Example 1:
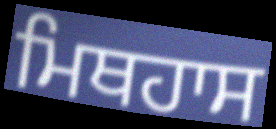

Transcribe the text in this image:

ਮਿਥਹਾਸ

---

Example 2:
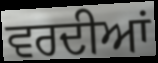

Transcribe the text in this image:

ਵਰਦੀਆਂ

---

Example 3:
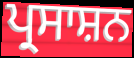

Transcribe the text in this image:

ਪ੍ਰਸਾਸ਼ਨ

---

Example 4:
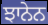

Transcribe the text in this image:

ਝਾਨੇਨ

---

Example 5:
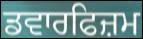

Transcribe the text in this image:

ਡਵਾਰਫਿਜ਼ਮ